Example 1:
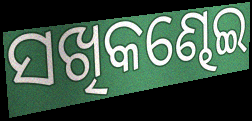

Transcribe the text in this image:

ସଖିକଣ୍ଢେଇ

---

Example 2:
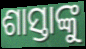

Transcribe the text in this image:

ଶାସ୍ତାଙ୍କୁ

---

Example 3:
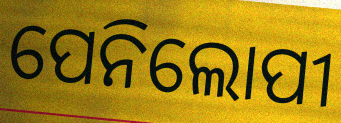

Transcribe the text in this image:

ପେନିଲୋପୀ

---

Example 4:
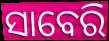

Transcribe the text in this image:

ସାବେରି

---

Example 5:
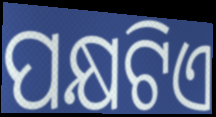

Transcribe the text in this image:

ପକ୍ଷଟିଏ